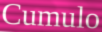
Cumulo